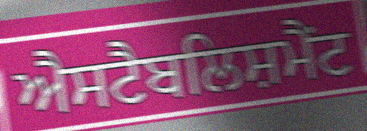
ਐਸਟੈਬਲਿਸ਼ਮੈਂਟ